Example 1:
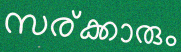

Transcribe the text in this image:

സര്ക്കാരും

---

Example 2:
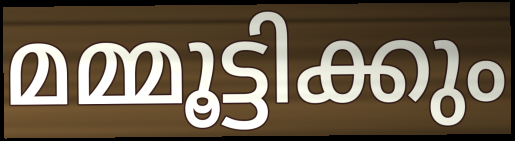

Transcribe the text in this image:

മമ്മൂട്ടിക്കും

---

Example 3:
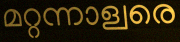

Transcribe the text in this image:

മറ്റന്നാള്വരെ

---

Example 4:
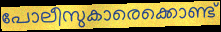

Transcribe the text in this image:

പോലീസുകാരെക്കൊണ്ട്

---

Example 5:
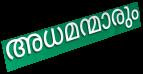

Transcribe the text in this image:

അധമന്മാരും